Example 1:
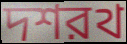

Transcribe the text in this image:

দশরথ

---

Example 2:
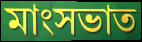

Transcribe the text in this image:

মাংসভাত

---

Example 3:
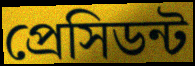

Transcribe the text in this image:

প্রেসিডন্ট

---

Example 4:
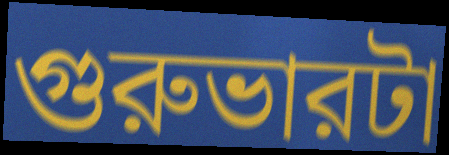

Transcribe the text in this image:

গুরুভারটা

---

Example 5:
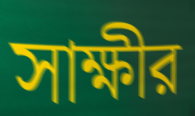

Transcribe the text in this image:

সাক্ষীর